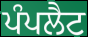
ਪੰਪਲੈਟ